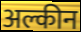
अल्कीन